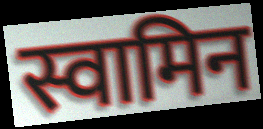
स्वामिन